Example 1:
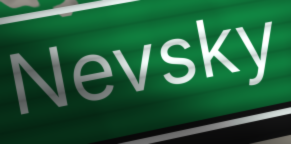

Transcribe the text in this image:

Nevsky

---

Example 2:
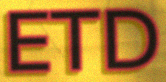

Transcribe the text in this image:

ETD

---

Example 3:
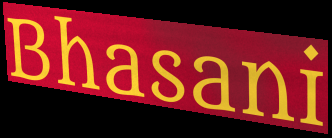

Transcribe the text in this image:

Bhasani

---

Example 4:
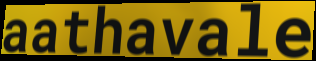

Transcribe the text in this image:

aathavale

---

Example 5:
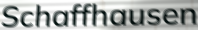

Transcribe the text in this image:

Schaffhausen